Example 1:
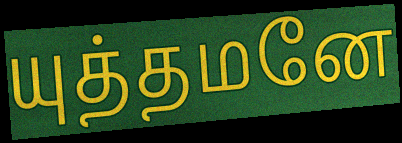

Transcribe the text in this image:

யுத்தமனே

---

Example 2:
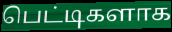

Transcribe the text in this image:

பெட்டிகளாக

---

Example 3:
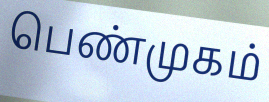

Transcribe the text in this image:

பெண்முகம்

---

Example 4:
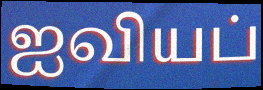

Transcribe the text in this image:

ஐவியப்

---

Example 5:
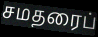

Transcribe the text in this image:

சமதரைப்